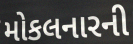
મોકલનારની